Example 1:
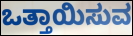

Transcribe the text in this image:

ಒತ್ತಾಯಿಸುವ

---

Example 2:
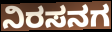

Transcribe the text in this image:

ನಿರಸನಗ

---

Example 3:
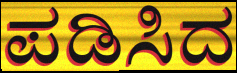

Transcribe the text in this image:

ಪಡಿಸಿದ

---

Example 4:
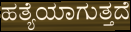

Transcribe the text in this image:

ಹತ್ಯೆಯಾಗುತ್ತದೆ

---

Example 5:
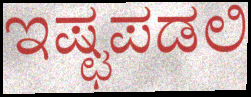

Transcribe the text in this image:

ಇಷ್ಟಪಡಲಿ